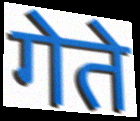
गेते